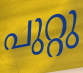
പുറ്റു